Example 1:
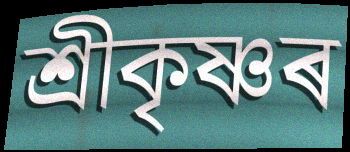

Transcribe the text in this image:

শ্ৰীকৃষ্ণৰ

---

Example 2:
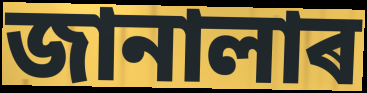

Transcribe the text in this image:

জানালাৰ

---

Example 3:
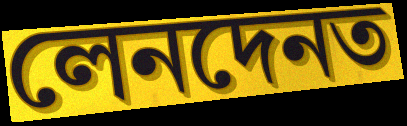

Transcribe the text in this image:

লেনদেনত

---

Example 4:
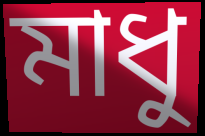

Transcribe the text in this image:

মাধু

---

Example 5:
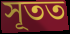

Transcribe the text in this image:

সূতত